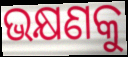
ଭକ୍ଷଣକୁ